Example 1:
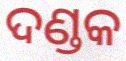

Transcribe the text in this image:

ଦଣ୍ଡକ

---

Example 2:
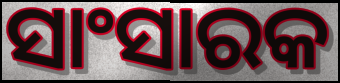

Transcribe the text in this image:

ସାଂସାରକ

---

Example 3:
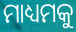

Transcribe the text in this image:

ମାଧ୍ୟମକୁ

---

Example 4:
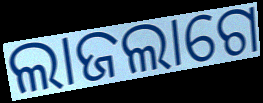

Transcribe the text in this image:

ଲାଜଲାଗେ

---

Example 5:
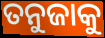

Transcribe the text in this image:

ତନୁଜାକୁ